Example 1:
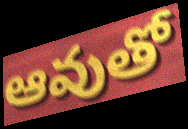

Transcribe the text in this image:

ఆవుతో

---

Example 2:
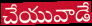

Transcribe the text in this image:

చేయువాడే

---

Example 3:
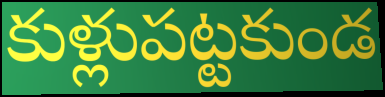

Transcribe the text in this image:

కుళ్లుపట్టకుండ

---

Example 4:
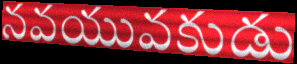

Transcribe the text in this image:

నవయువకుడు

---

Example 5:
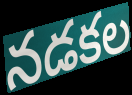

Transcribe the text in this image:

నడకల